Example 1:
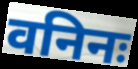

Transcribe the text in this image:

वनिनः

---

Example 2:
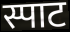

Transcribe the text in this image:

स्पाट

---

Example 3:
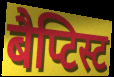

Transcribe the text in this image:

बैप्टिस्ट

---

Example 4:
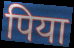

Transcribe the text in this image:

पिया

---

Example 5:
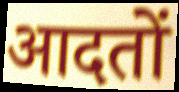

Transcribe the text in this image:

आदतों